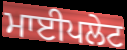
ਮਾਈਪਲੇਟ